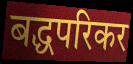
बद्धपरिकर